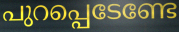
പുറപ്പെടേണ്ടേ